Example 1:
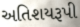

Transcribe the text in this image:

અતિશયરૂપી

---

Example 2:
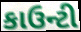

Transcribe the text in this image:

કાઉન્ટી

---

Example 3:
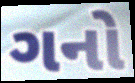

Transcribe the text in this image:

ગનો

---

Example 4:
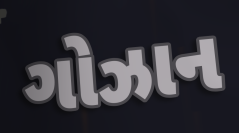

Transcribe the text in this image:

ગોઝાન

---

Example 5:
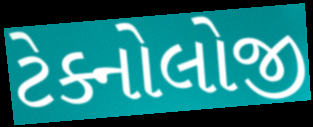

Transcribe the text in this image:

ટેક્નોલોજી